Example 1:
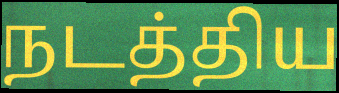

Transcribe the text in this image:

நடத்திய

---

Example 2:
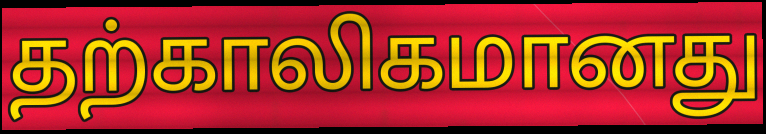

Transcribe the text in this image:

தற்காலிகமானது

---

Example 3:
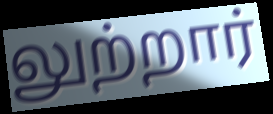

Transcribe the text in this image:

லுற்றார்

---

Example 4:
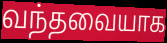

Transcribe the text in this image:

வந்தவையாக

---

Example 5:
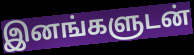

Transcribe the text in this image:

இனங்களுடன்